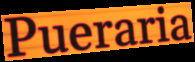
Pueraria